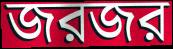
জরজর